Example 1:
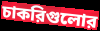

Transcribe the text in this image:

চাকরিগুলোর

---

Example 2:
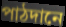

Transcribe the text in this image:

পাঠদানে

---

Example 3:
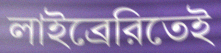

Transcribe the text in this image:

লাইব্রেরিতেই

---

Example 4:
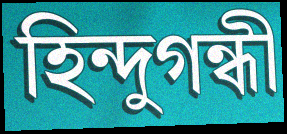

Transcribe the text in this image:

হিন্দুগন্ধী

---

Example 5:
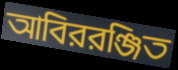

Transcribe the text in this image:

আবিররঞ্জিত